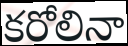
కరోలినా